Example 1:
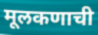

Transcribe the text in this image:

मूलकणाची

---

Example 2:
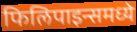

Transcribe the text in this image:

फिलिपाइन्समध्ये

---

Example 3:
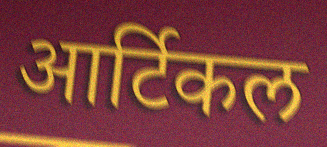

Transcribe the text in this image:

आर्टिकल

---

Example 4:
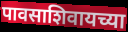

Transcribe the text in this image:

पावसाशिवायच्या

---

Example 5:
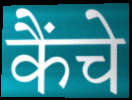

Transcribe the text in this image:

कैंचे